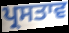
ਪ੍ਰਸਤਾਵ